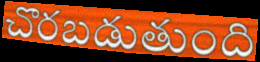
చొరబడుతుంది